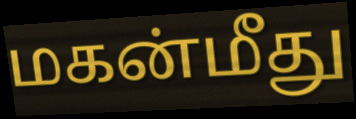
மகன்மீது